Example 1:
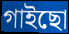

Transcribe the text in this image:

গাইছো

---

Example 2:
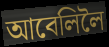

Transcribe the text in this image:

আবেলিলৈ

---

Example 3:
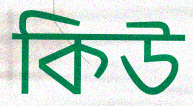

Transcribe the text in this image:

কিউ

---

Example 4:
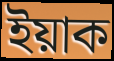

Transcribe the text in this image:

ইয়াক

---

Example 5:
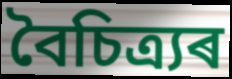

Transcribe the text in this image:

বৈচিত্ৰ্যৰ